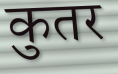
कुतर